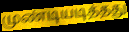
முண்டியடித்தது